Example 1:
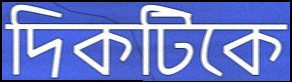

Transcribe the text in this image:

দিকটিকে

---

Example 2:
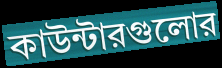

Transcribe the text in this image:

কাউন্টারগুলোর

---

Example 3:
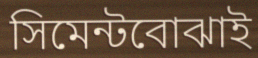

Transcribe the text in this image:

সিমেন্টবোঝাই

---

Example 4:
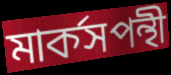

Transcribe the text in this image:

মার্কসপন্থী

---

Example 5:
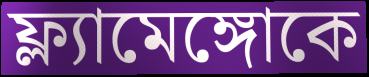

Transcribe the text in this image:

ফ্ল্যামেঙ্গোকে